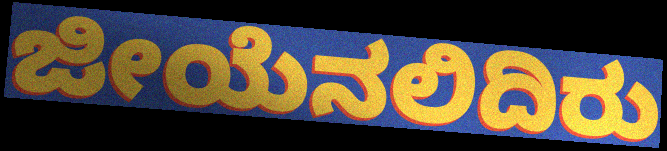
ಜೀಯೆನಲಿದಿರು